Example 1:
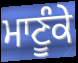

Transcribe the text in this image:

ਮਾਣੂੰਕੇ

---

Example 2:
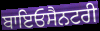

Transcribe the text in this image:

ਬਾਇਓਸੈਨਟਰੀ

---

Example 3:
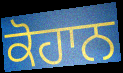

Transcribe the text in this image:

ਕੋਹਾਨ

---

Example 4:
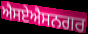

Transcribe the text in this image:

ਐਸਏਐਸਨਗਰ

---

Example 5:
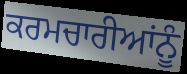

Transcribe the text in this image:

ਕਰਮਚਾਰੀਆਂਨੂੰ